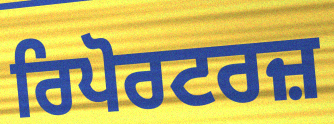
ਰਿਪੋਰਟਰਜ਼